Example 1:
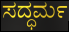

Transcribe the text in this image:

ಸದ್ಧರ್ಮ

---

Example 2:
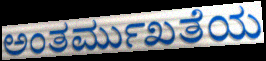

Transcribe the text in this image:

ಅಂತರ್ಮುಖತೆಯ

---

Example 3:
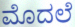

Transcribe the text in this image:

ಮೊದಲೆ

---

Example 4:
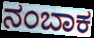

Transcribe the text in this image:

ನಂಬಾಕ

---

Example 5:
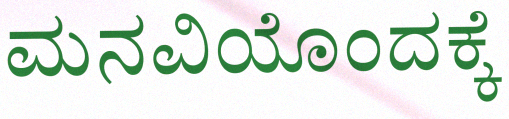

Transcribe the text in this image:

ಮನವಿಯೊಂದಕ್ಕೆ